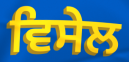
ਵਿਸੇਲ